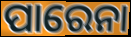
ପାରେନା